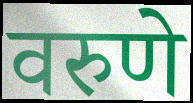
वरुणे